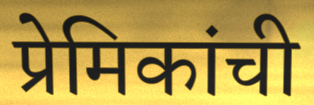
प्रेमिकांची